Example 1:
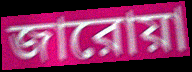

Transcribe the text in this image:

জারোয়া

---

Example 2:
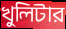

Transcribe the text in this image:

খুলিটার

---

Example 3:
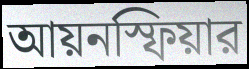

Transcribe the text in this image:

আয়নস্ফিয়ার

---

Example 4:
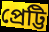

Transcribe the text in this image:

প্রেট্টি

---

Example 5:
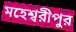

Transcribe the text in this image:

মহেশ্বরীপুর